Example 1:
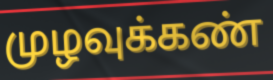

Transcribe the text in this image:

முழவுக்கண்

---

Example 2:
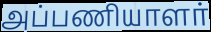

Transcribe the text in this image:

அப்பணியாளர்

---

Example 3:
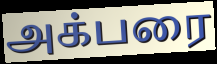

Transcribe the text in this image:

அக்பரை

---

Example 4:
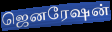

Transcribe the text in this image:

ஜெனரேஷன்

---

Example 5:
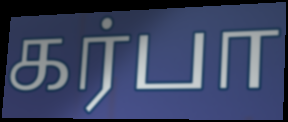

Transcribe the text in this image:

கர்பா